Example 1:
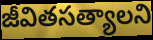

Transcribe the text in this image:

జీవితసత్యాలని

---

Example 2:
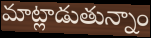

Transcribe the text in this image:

మాట్లాడుతున్నాం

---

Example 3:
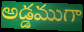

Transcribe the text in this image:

అడ్డముగా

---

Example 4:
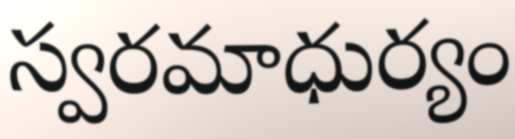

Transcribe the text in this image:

స్వరమాధుర్యం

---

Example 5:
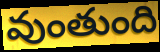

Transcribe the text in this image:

వుంతుంది